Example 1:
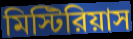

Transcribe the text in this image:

মিস্টিরিয়াস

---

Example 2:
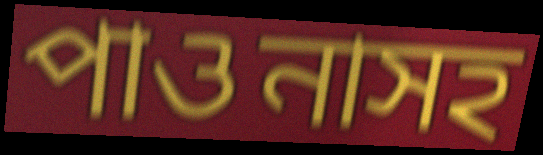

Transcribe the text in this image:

পাওনাসহ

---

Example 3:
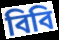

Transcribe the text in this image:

বিবি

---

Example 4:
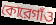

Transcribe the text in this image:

কোরেগাঁও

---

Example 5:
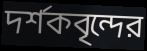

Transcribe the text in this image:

দর্শকবৃন্দের